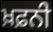
ਖ਼ਫ਼ਨੀ